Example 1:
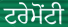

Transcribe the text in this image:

ਟਰੇਮੋਂਟੀ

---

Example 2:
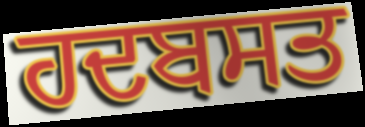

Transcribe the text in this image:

ਹਦਬਸਤ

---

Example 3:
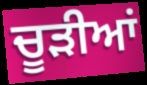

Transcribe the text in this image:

ਚੂੜੀਆਂ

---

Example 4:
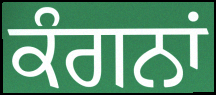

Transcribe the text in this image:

ਕੰਗਨਾਂ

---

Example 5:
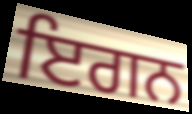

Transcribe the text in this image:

ਇਗਨ